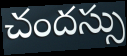
చందస్సు